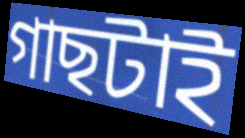
গাছটাই